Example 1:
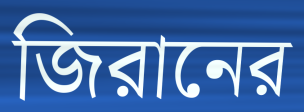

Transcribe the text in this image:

জিরানের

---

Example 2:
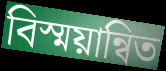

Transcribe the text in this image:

বিস্ময়ান্বিত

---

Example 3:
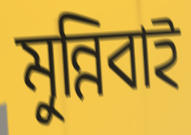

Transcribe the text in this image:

মুন্নিবাই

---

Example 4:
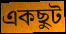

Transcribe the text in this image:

একছুট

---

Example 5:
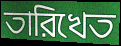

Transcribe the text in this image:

তারিখেত